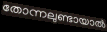
തോന്നലുണ്ടായാൽ